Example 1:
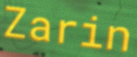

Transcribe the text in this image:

Zarin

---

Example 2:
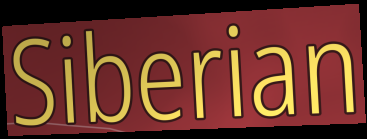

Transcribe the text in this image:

Siberian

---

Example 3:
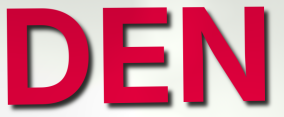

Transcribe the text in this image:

DEN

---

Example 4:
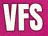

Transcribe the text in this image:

VFS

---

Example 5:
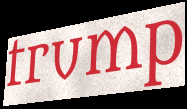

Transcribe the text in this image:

trump